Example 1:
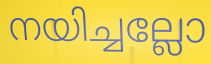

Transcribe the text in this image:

നയിച്ചല്ലോ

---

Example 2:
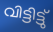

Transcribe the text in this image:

വിട്ടിട്ടു്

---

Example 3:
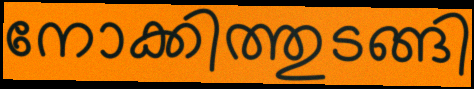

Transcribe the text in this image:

നോക്കിത്തുടങ്ങി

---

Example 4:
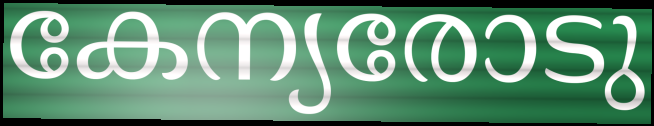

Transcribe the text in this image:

കേന്യരോടു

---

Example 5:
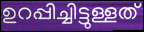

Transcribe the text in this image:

ഉറപ്പിച്ചിട്ടുള്ളത്